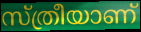
സ്ത്രീയാണ്